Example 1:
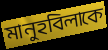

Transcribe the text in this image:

মানুহবিলাকে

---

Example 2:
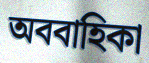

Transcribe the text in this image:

অববাহিকা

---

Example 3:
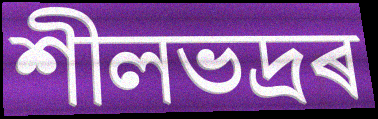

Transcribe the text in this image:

শীলভদ্ৰৰ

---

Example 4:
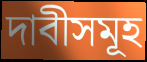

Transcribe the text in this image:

দাবীসমূহ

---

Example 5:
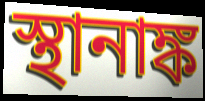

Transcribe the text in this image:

স্থানাঙ্ক